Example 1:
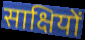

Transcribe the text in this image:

साक्षियों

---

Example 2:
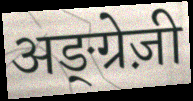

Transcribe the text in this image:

अङ्ग्रेज़ी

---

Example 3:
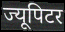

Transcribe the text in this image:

ज्यूपिटर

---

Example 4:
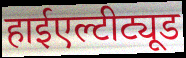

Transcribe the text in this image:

हाईएल्टीट्यूड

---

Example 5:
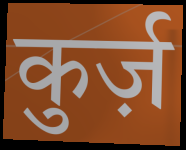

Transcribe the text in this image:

कुर्ज़